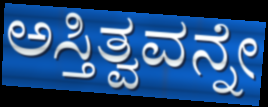
ಅಸ್ತಿತ್ವವನ್ನೇ